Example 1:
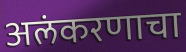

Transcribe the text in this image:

अलंकरणाचा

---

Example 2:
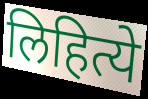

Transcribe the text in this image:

लिहित्ये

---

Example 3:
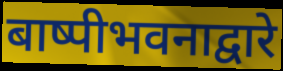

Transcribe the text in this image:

बाष्पीभवनाद्वारे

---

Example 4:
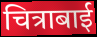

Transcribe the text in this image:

चित्राबाई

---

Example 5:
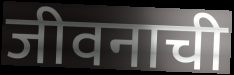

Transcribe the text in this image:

जीवनाची